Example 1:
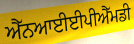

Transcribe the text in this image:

ਐੱਨਆਈਈਪੀਐੱਮਡੀ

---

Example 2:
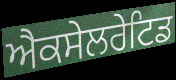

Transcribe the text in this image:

ਐਕਸੇਲਰੇਟਿਡ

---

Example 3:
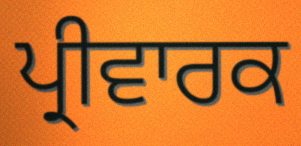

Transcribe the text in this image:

ਪ੍ਰੀਵਾਰਕ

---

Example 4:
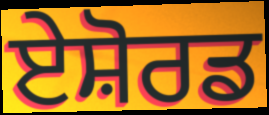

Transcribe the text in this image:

ਏਸ਼ੋਰਡ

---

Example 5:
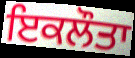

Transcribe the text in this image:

ਇਕਲੌਤਾ